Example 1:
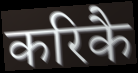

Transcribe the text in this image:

करिकै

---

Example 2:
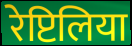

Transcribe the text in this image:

रेप्टिलिया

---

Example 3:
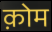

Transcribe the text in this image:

क़ोम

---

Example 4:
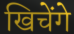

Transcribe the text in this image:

खिचेंगे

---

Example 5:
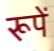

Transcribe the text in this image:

रूपें